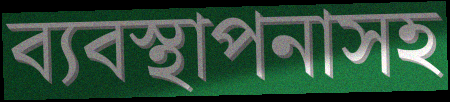
ব্যবস্থাপনাসহ